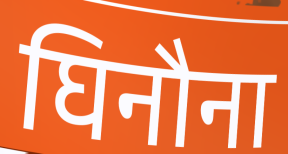
घिनौना